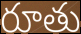
రూతు